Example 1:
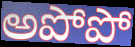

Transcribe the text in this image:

అపోపో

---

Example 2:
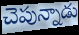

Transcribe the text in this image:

చెపున్నాడు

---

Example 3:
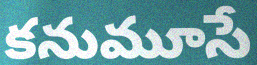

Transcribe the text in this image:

కనుమూసే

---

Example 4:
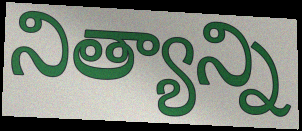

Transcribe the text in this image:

నిత్యాన్ని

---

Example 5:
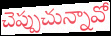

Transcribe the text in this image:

చెప్పుచున్నావో